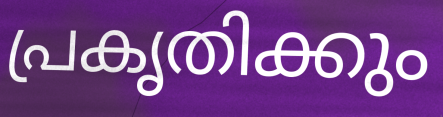
പ്രകൃതിക്കും